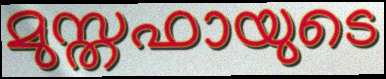
മുസ്തഫായുടെ